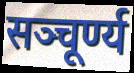
सञ्चूर्ण्य